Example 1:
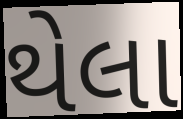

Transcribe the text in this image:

થેલા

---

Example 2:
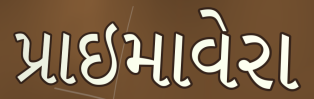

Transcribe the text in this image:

પ્રાઇમાવેરા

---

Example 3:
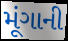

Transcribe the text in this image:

મૂંગાની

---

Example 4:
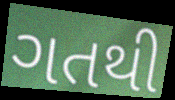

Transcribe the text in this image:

ગતથી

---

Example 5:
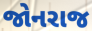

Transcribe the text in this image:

જોનરાજ